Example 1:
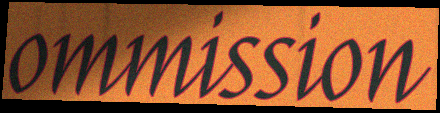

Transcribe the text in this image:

ommission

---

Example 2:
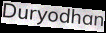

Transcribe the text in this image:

Duryodhan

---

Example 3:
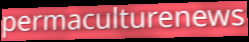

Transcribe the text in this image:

permaculturenews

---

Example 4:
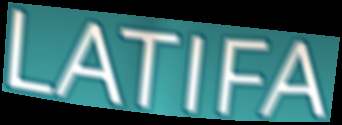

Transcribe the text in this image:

LATIFA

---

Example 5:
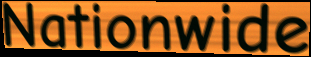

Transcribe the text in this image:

Nationwide